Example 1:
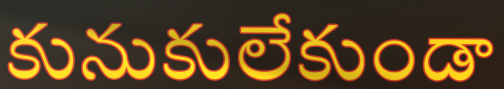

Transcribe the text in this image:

కునుకులేకుండా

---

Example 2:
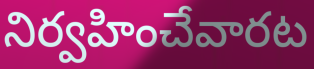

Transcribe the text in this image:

నిర్వహించేవారట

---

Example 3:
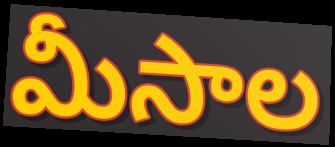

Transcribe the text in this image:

మీసాల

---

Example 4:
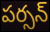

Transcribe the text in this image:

పర్సన్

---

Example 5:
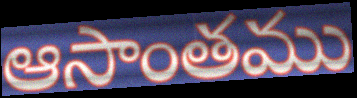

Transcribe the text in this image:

ఆసాంతము